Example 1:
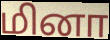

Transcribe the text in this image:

மினா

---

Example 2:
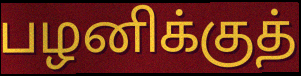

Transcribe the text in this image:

பழனிக்குத்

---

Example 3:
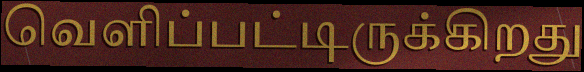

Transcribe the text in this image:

வெளிப்பட்டிருக்கிறது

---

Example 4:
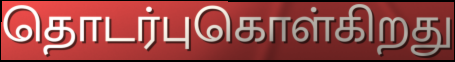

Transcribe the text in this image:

தொடர்புகொள்கிறது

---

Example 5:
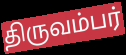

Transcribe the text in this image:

திருவம்பர்